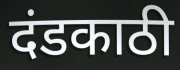
दंडकाठी